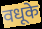
वधूके